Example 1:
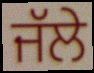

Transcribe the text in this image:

ਜੱਲੇ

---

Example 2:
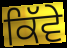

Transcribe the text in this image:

ਕਿੱਵੇ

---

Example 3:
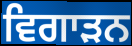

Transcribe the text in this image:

ਵਿਗਾੜਨ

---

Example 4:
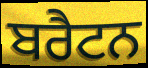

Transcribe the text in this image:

ਬਰੈਟਨ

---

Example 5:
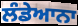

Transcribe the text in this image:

ਲੰਡੇਆਨਾ